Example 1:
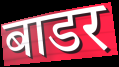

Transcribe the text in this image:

बाडर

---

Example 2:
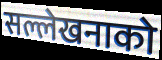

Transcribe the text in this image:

सल्लेखनाको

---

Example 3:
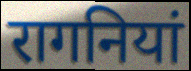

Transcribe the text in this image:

रागनियां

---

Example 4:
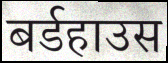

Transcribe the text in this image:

बर्डहाउस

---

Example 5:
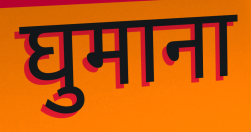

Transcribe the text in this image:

घुमाना